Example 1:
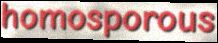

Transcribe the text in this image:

homosporous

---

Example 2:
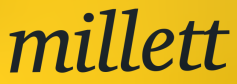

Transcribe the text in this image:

millett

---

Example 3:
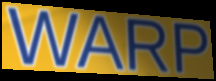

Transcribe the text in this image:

WARP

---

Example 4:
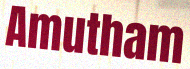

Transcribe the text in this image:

Amutham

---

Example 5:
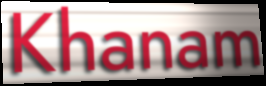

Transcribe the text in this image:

Khanam